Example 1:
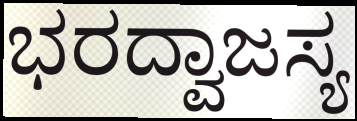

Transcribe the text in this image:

ಭರದ್ವಾಜಸ್ಯ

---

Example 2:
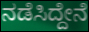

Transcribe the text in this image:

ನಡೆಸಿದ್ದೇನೆ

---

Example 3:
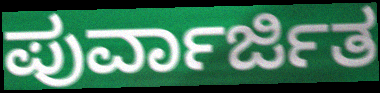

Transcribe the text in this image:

ಪುರ್ವಾರ್ಜಿತ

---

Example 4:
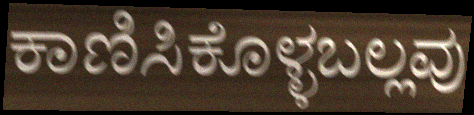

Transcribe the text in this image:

ಕಾಣಿಸಿಕೊಳ್ಳಬಲ್ಲವು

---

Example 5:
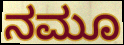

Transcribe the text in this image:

ನಮೂ